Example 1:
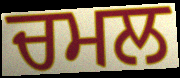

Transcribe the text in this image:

ਚਮਲ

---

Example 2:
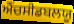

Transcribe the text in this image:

ਐੱਚਸੀਡਬਲਯੂ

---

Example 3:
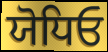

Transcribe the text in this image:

ਯੋਧਿਓ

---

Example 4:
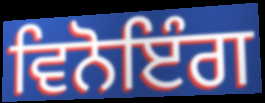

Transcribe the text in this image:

ਵਿਨੋਇੰਗ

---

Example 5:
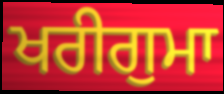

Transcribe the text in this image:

ਖਰੀਗੁਮਾ